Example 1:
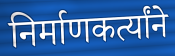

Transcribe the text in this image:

निर्माणकर्त्यांने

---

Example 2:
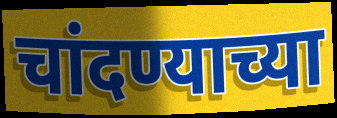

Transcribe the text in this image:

चांदण्याच्या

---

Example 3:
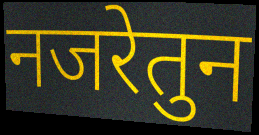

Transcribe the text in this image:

नजरेतुन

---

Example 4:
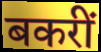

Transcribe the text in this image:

बकरीं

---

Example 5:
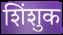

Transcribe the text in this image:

शिंशुक